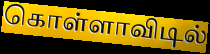
கொள்ளாவிடில்